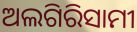
ଅଲଗିରିସାମୀ